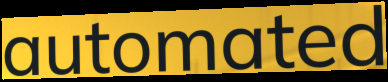
automated